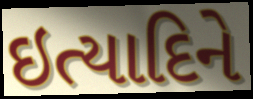
ઇત્‍યાદિને